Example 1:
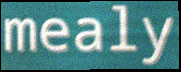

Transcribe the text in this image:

mealy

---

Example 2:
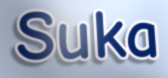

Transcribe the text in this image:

Suka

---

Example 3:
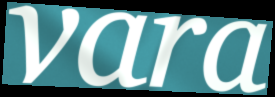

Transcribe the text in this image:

vara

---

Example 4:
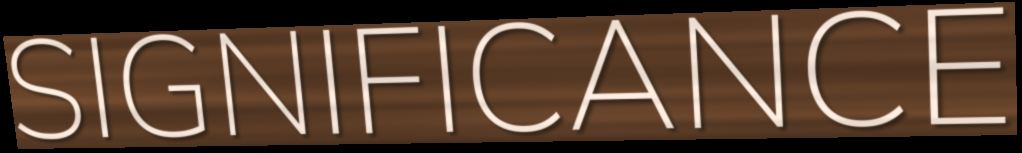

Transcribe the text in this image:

SIGNIFICANCE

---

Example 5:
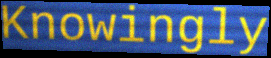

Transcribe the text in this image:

Knowingly